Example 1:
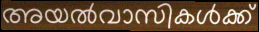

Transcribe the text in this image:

അയൽവാസികൾക്ക്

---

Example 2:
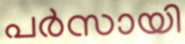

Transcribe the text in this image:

പർസായി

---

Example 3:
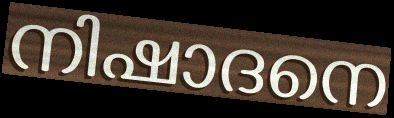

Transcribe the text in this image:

നിഷാദനെ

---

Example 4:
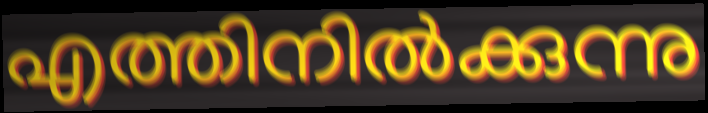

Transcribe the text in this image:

എത്തിനിൽക്കുന്നു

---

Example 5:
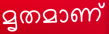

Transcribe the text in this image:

മൃതമാണ്